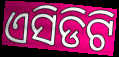
ଏସିଡିଟି